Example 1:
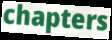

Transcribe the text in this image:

chapters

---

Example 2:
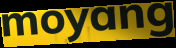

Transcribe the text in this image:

moyang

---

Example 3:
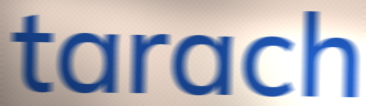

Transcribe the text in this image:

tarach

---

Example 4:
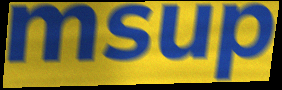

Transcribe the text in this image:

msup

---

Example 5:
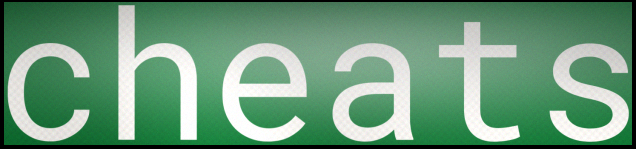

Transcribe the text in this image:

cheats